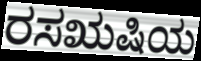
ರಸಋಷಿಯ